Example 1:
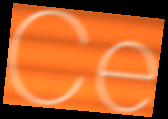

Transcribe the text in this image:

Ce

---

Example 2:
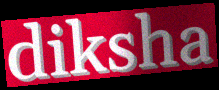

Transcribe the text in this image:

diksha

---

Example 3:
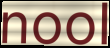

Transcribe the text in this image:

nool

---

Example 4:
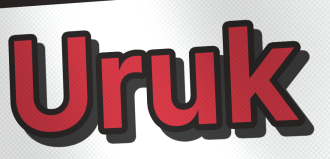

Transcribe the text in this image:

Uruk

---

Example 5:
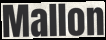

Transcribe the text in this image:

Mallon